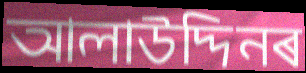
আলাউদ্দিনৰ